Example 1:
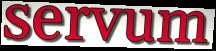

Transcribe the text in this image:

servum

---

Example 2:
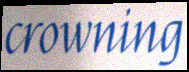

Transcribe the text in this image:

crowning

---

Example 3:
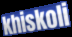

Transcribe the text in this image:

khiskoli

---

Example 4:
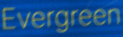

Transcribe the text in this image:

Evergreen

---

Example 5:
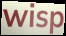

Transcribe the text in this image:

wisp